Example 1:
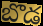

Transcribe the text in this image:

బొడ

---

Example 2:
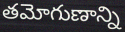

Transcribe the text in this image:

తమోగుణాన్ని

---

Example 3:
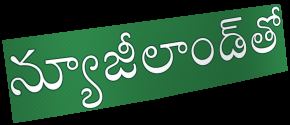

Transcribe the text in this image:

న్యూజీలాండ్‌తో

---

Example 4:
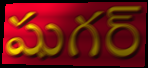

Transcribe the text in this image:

షుగర్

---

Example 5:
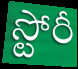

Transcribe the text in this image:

స్టోరీ